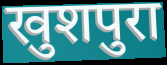
खुशपुरा